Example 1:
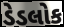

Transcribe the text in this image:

ડેડલોક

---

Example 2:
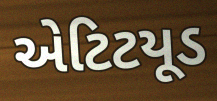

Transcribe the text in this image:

એટિટયૂડ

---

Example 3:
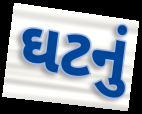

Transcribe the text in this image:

ઘટનું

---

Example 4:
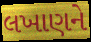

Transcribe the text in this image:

લખાણને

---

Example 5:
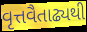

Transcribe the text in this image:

વૃત્તવૈતાઢ્યથી